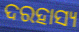
ଦରହାସ୍ୟ